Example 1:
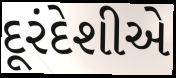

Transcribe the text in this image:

દૂરંદેશીએ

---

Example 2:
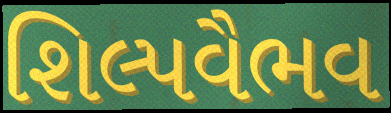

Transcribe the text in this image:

શિલ્પવૈભવ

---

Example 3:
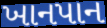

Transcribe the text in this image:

ખાનપાન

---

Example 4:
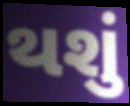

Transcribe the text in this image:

થશું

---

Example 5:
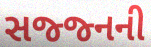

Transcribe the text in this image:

સજ્જ્નની